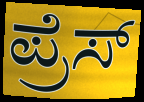
ಪ್ರೆಸ್